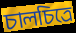
চালচিত্রে